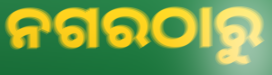
ନଗରଠାରୁ